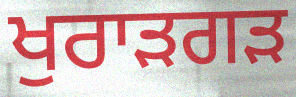
ਖੁਰਾੜਗੜ